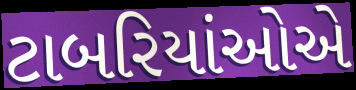
ટાબરિયાંઓએ